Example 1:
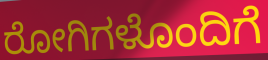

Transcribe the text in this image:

ರೋಗಿಗಳೊಂದಿಗೆ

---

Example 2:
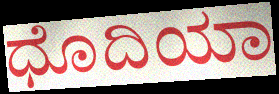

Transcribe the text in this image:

ಧೊದಿಯಾ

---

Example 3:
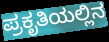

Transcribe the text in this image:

ಪ್ರಕೃತಿಯಲ್ಲಿನ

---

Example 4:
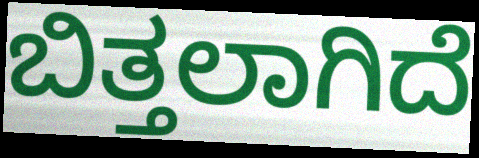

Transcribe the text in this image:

ಬಿತ್ತಲಾಗಿದೆ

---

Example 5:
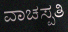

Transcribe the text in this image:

ವಾಚಸ್ಪತಿ